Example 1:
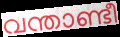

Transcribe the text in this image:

വന്താണ്ടീ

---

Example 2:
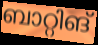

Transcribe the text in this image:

ബാറ്റിങ്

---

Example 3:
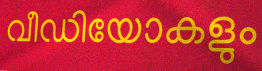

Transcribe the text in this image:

വീഡിയോകളും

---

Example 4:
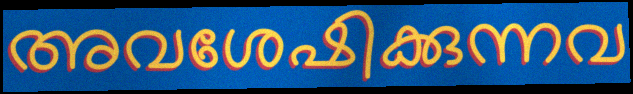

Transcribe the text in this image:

അവശേഷിക്കുന്നവ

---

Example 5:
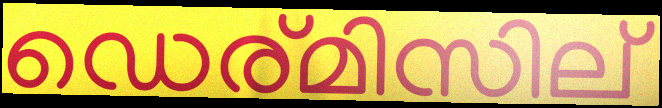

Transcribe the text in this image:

ഡെര്മിസില്